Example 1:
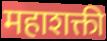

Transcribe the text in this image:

महाशक्ती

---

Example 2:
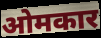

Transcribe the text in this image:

ओमकार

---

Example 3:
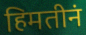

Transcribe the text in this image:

हिमतीनं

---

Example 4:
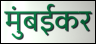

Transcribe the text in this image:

मुंबईकर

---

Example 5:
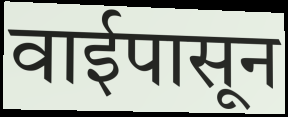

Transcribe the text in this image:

वाईपासून